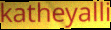
katheyalli